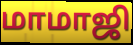
மாமாஜி